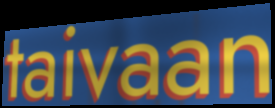
taivaan